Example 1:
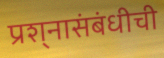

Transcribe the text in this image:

प्रश्नासंबंधीची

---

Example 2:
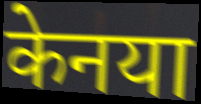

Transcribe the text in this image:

केनया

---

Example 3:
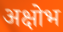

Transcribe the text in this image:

अक्षोभ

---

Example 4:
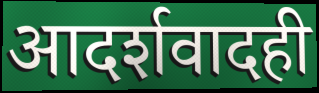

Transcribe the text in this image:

आदर्शवादही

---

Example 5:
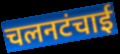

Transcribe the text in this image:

चलनटंचाई